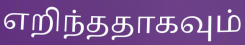
எறிந்ததாகவும்